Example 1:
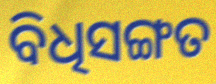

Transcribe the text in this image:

ବିଧିସଙ୍ଗତ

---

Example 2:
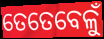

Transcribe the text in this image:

ତେତେବେଳୁଁ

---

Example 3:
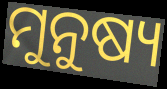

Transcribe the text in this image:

ମୁନୁଷ୍ୟ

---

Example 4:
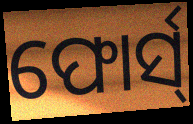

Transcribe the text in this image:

ଫୋର୍ସ୍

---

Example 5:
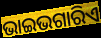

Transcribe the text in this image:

ଭାଇଭଗାରିଏ